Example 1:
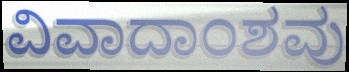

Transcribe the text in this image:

ವಿವಾದಾಂಶವು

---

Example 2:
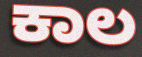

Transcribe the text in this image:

ಕಾಲ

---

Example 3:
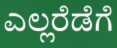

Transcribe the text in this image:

ಎಲ್ಲರೆಡೆಗೆ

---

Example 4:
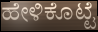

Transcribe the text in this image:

ಹೇಳಿಕೊಟ್ಟೆ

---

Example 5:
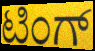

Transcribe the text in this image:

ಟಿಂಗ್